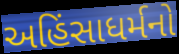
અહિંસાધર્મનો